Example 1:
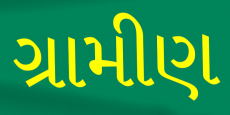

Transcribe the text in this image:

ગ્રામીણ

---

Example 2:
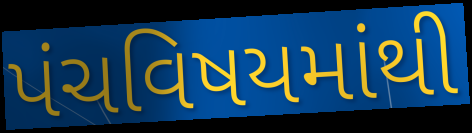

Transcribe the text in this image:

પંચવિષયમાંથી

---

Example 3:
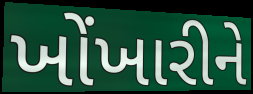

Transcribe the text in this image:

ખોંખારીને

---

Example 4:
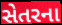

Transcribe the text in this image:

સેતરના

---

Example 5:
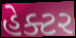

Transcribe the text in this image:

હેક્ટર